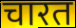
चारत